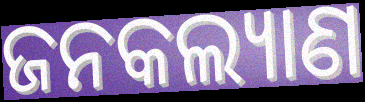
ଜନକଲ୍ୟାଣ